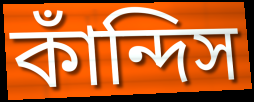
কাঁন্দিস